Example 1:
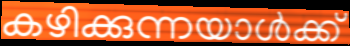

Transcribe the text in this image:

കഴിക്കുന്നയാൾക്ക്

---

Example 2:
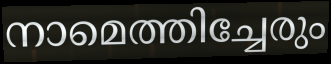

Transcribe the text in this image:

നാമെത്തിച്ചേരും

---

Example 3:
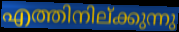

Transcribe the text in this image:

എത്തിനില്ക്കുന്നു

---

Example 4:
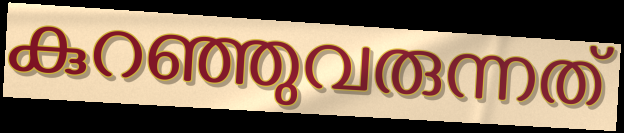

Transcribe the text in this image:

കുറഞ്ഞുവരുന്നത്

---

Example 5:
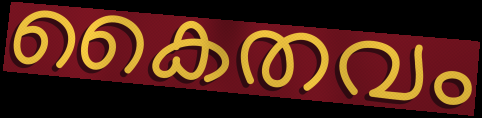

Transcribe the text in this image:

കൈതവം